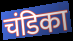
चंडिका